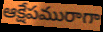
ఆక్షేపమురాగా